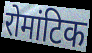
रोमांटिक